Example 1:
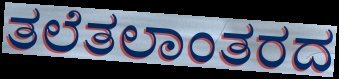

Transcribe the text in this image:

ತಲೆತಲಾಂತರದ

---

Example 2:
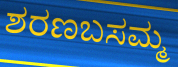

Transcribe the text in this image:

ಶರಣಬಸಮ್ಮ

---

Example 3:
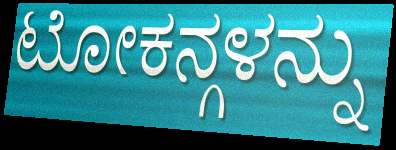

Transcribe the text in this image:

ಟೋಕನ್ಗಳನ್ನು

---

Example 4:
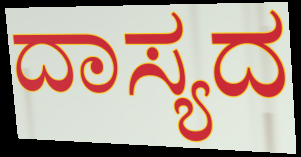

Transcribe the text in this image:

ದಾಸ್ಯದ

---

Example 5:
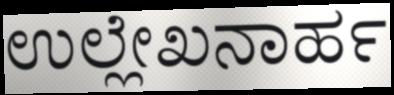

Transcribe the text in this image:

ಉಲ್ಲೇಖನಾರ್ಹ